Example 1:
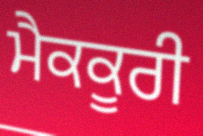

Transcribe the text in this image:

ਮੈਕਕੂਰੀ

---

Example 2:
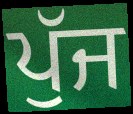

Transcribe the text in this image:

ਪੁੱਜ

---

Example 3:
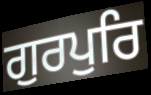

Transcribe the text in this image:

ਗੁਰਪੁਰਿ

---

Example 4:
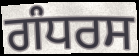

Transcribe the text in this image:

ਗੰਧਰਸ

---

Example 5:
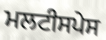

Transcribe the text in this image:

ਮਲਟੀਸਪੇਸ